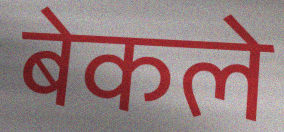
बेकले